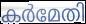
കർമേതി